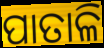
ପାତାଳି